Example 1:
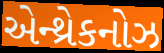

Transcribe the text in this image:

એન્થ્રેકનોઝ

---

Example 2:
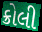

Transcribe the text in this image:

ક્રોલી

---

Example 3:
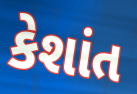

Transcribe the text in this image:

કેશાંત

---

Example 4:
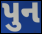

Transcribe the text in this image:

પુન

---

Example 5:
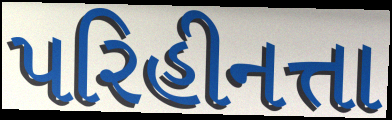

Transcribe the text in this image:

પરિહીનત્તા